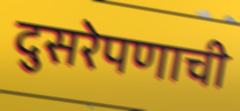
दुसरेपणाची